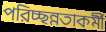
পরিচ্ছন্নতাকর্মী